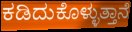
ಕಡಿದುಕೊಳ್ಳುತ್ತಾನೆ